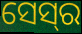
ସେସ୍‌ର